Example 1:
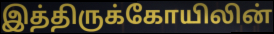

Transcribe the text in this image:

இத்திருக்கோயிலின்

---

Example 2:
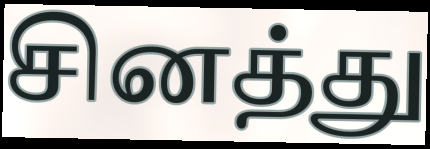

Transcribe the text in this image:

சினத்து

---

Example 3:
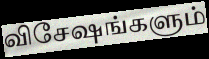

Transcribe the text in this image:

விசேஷங்களும்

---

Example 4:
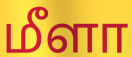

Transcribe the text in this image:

மீளா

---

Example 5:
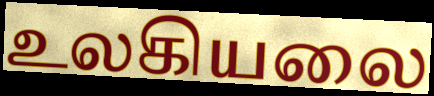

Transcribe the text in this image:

உலகியலை